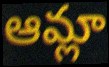
ఆమ్లా